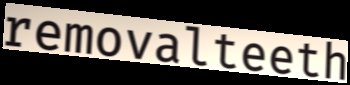
removalteeth